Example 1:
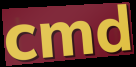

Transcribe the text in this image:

cmd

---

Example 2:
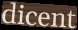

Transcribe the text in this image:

dicent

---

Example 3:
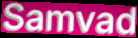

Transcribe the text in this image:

Samvad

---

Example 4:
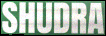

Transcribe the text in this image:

SHUDRA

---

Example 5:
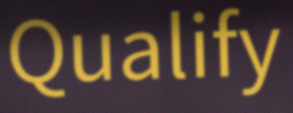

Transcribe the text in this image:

Qualify